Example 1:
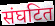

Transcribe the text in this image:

संघटित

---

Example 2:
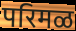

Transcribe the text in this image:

परिमळ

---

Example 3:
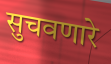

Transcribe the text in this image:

सुचवणारे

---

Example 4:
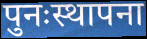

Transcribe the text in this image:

पुनःस्थापना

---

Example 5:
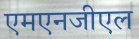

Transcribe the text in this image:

एमएनजीएल